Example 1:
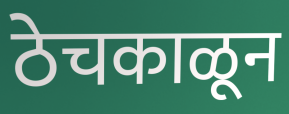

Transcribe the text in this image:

ठेचकाळून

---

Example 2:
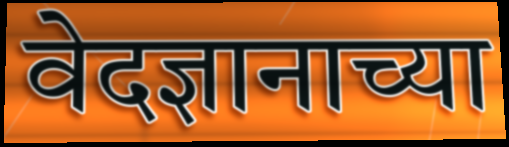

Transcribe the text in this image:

वेदज्ञानाच्या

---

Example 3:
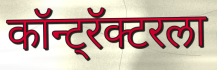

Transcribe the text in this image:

कॉन्ट्रॅक्टरला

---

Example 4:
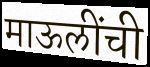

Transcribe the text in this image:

माऊलींची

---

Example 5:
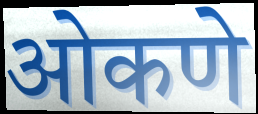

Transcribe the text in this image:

ओकणे